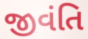
જીવંતિ